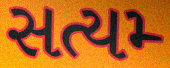
સત્યમ્‍